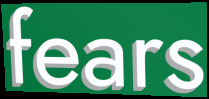
fears